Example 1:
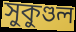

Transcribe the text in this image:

সুকুণ্ডল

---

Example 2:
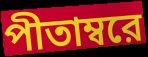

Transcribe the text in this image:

পীতাম্বরে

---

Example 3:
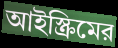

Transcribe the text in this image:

আইস্ক্রিমের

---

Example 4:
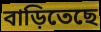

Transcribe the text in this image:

বাড়িতেছে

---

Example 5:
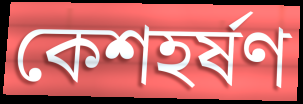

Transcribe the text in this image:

কেশহর্ষণ